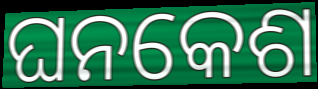
ଘନକେଶ